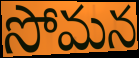
సోమన